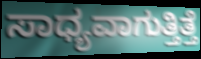
ಸಾಧ್ಯವಾಗುತ್ತಿತ್ತೆ